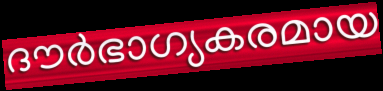
ദൗർഭാഗ്യകരമായ